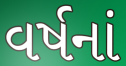
વર્ષનાં